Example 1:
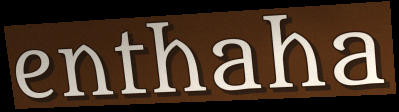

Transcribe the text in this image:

enthaha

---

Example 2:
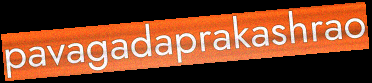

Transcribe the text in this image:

pavagadaprakashrao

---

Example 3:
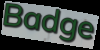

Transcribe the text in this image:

Badge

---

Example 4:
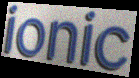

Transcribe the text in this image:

ionic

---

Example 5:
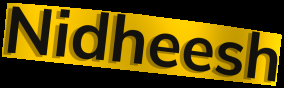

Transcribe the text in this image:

Nidheesh